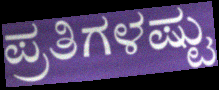
ಪ್ರತಿಗಳಷ್ಟು